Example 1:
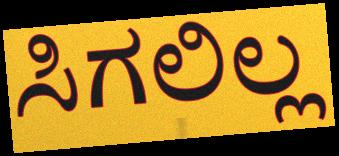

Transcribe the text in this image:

ಸಿಗಲಿಲ್ಲ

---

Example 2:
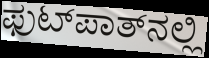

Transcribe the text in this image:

ಫುಟ್‌ಪಾತ್‌ನಲ್ಲಿ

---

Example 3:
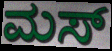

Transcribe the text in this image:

ಮಸ್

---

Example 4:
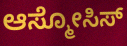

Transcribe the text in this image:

ಆಸ್ಮೋಸಿಸ್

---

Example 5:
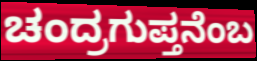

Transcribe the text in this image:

ಚಂದ್ರಗುಪ್ತನೆಂಬ